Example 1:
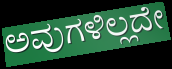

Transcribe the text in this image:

ಅವುಗಳಿಲ್ಲದೇ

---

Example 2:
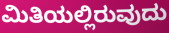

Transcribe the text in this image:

ಮಿತಿಯಲ್ಲಿರುವುದು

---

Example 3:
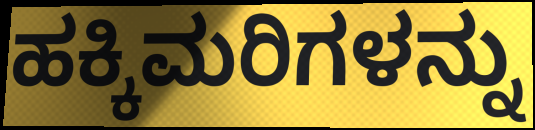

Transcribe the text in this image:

ಹಕ್ಕಿಮರಿಗಳನ್ನು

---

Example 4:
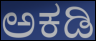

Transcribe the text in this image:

ಅಕಡಿ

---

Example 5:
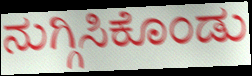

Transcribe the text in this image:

ನುಗ್ಗಿಸಿಕೊಂಡು